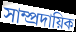
সাম্প্ৰদায়িক